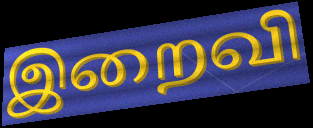
இறைவி